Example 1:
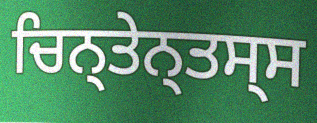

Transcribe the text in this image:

ਚਿਨ੍ਤੇਨ੍ਤਸ੍ਸ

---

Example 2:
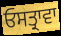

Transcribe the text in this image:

ਓਸਤ੍ਰਾਵਾ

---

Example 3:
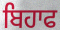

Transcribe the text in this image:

ਬਿਹਾਫ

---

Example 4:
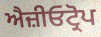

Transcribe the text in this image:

ਐਜ਼ੀਓਟ੍ਰੋਪ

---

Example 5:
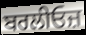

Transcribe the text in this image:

ਬਰਲੀਓਜ਼